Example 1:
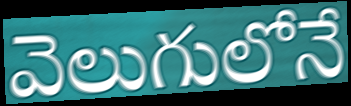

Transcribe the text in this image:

వెలుగులోనే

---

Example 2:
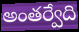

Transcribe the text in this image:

అంతర్వేది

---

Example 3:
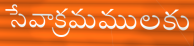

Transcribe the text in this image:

సేవాక్రమములకు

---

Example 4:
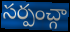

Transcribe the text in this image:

సర్పంచ్గా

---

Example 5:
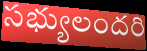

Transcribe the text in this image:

సభ్యులందరి